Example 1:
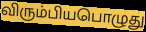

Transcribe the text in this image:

விரும்பியபொழுது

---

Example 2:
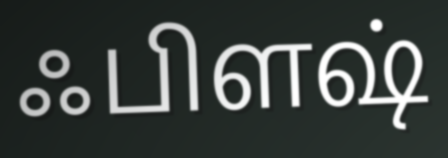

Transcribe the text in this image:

ஃபிளஷ்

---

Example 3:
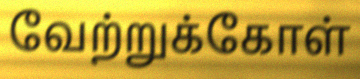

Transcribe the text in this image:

வேற்றுக்கோள்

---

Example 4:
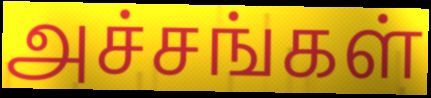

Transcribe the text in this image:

அச்சங்கள்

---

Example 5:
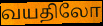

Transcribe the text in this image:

வயதிலோ